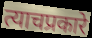
त्याचप्रकारे